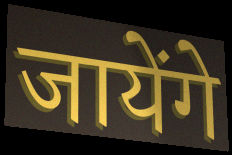
जायेंगे